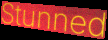
Stunned